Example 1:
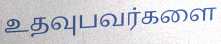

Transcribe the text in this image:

உதவுபவர்களை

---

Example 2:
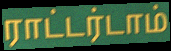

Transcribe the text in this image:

ராட்டர்டாம்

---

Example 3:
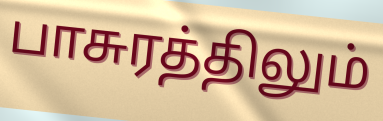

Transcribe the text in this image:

பாசுரத்திலும்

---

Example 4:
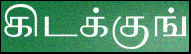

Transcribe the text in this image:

கிடக்குங்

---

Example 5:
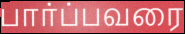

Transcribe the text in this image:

பார்ப்பவரை